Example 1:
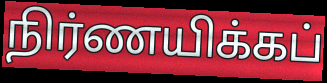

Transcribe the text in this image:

நிர்ணயிக்கப்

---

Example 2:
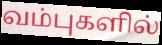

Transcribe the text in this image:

வம்புகளில்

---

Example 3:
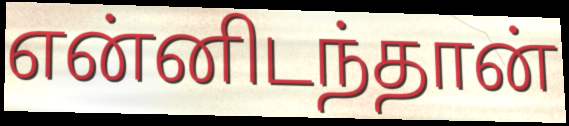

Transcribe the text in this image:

என்னிடந்தான்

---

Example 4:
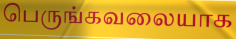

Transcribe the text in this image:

பெருங்கவலையாக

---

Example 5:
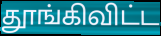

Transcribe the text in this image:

தூங்கிவிட்ட